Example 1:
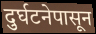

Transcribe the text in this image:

दुर्घटनेपासून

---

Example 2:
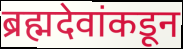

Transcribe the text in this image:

ब्रह्मदेवांकडून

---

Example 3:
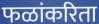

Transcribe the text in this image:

फळांकरिता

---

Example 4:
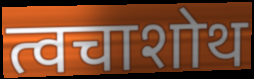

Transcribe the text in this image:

त्वचाशोथ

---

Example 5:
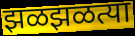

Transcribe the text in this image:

झळझळत्या